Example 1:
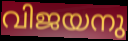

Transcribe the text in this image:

വിജയനു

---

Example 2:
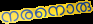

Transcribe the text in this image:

നരനൊരു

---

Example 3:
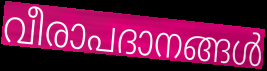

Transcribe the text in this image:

വീരാപദാനങ്ങൾ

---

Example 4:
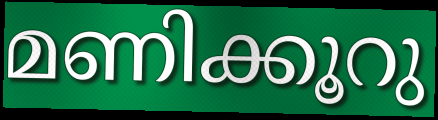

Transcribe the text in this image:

മണിക്കൂറു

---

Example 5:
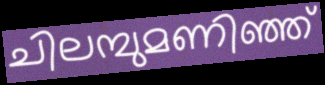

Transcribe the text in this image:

ചിലമ്പുമണിഞ്ഞ്